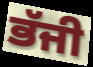
ਭੱਜੀ